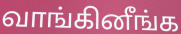
வாங்கினீங்க